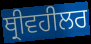
ਥ੍ਰੀਵਹੀਲਰ